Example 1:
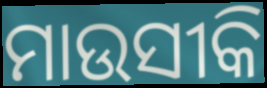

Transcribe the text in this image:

ମାଉସୀକି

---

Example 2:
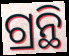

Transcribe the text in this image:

ଗ୍ରନ୍ଥି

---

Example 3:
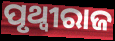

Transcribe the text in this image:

ପୃଥ୍ୱୀରାଜ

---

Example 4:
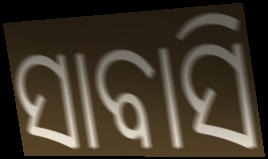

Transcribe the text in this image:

ସାବାସି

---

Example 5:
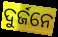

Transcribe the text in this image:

ଦୁର୍ଜନେ